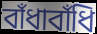
বাঁধাবাঁধি